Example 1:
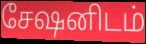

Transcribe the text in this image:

சேஷனிடம்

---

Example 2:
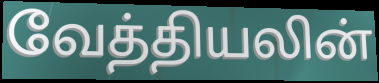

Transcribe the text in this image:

வேத்தியலின்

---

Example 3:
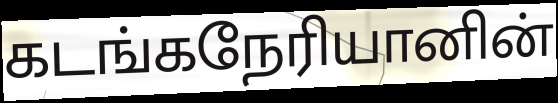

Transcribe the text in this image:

கடங்கநேரியானின்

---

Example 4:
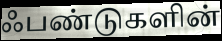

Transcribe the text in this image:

ஃபண்டுகளின்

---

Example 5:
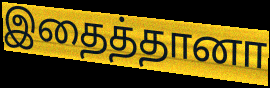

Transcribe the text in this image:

இதைத்தானா